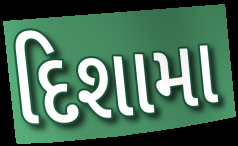
દિશામા